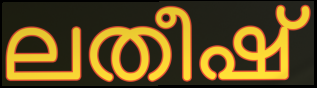
ലതീഷ്